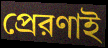
প্রেরণাই